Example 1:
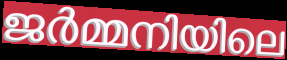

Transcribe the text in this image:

ജർമ്മനിയിലെ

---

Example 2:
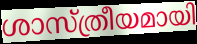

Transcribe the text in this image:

ശാസ്ത്രീയമായി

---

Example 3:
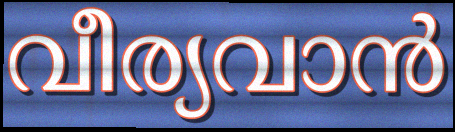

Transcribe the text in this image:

വീര്യവാൻ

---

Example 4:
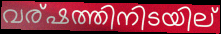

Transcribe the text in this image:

വര്ഷത്തിനിടയില്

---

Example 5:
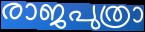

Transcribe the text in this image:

രാജപുത്രാ